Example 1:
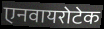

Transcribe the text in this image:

एनवायरोटेक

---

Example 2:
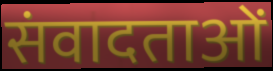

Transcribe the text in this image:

संवादताओं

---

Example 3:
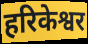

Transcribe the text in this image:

हरिकेश्वर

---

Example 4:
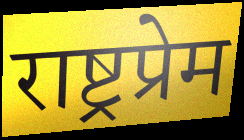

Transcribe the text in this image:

राष्ट्रप्रेम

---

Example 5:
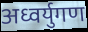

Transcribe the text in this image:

अध्वर्युगण